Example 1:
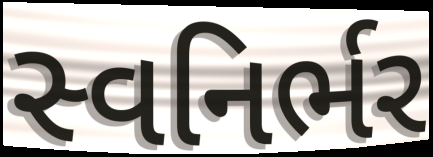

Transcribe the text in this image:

સ્વનિર્ભર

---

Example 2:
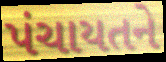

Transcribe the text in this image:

પંચાયતને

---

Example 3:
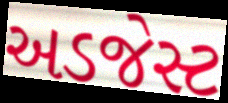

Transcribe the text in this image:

અડજેસ્ટ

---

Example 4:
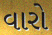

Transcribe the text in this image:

વારો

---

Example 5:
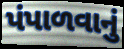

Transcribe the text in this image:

પંપાળવાનું